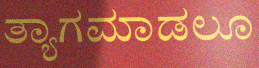
ತ್ಯಾಗಮಾಡಲೂ